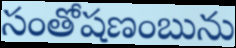
సంతోషణంబును